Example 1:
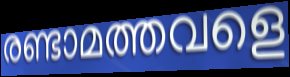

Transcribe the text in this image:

രണ്ടാമത്തവളെ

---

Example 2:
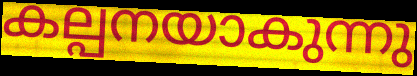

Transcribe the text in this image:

കല്പനയാകുന്നു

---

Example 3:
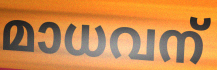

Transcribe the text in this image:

മാധവന്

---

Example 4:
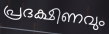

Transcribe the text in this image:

പ്രദക്ഷിണവും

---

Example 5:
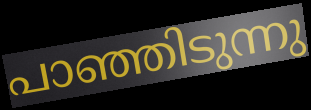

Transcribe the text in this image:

പാഞ്ഞിടുന്നു